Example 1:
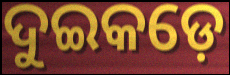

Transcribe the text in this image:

ଦୁଇକଡ଼େ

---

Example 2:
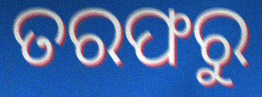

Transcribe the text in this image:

ତରଫରୁ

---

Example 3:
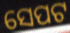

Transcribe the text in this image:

ସେପଟ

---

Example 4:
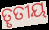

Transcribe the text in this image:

ତୄତୀୟ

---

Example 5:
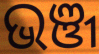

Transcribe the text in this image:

ଭଞ୍ଜ